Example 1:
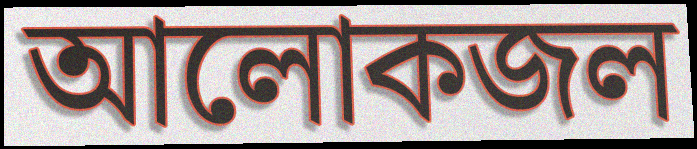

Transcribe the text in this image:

আলোকজল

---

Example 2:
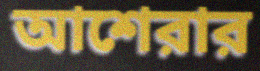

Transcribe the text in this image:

আশেরার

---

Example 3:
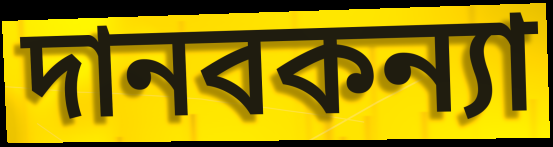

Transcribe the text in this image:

দানবকন্যা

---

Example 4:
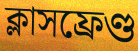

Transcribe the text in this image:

ক্লাসফ্রেণ্ড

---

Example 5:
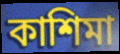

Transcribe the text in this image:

কাশিমা